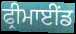
ਫ੍ਰੀਮਾਈਂਡ